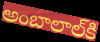
అంబాలాల్‌కి